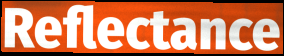
Reflectance